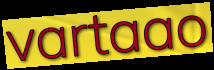
vartaao